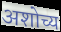
अशोच्य